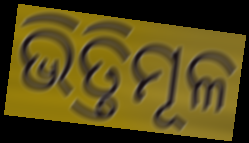
ଭିତ୍ତିମୂଳ